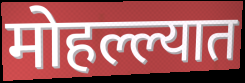
मोहल्ल्यात